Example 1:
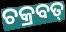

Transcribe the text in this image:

ଚକ୍ରବତ୍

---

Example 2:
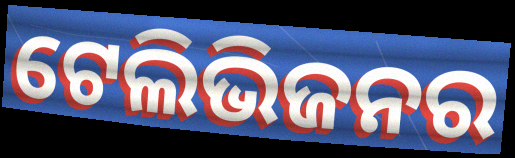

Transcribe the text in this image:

ଟେଲିଭିଜନର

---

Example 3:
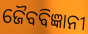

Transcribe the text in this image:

ଜୈବବିଜ୍ଞାନୀ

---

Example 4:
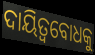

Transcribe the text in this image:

ଦାୟିତ୍ୱବୋଧକୁ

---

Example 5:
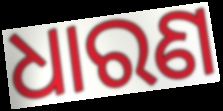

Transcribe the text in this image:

ଧାରଣ